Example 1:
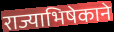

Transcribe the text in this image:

राज्याभिषेकाने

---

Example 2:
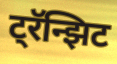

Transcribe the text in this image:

ट्रॅन्झिट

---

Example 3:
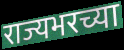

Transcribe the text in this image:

राज्यभरच्या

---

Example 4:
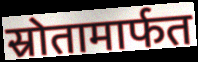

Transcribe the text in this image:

स्रोतामार्फत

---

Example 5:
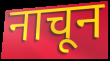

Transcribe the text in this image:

नाचून